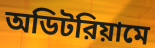
অডিটরিয়ামে